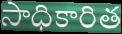
సాధికారిత